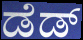
ಡೆಡ್